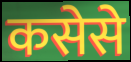
कसेसे